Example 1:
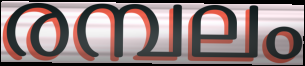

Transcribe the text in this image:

രമ്പലം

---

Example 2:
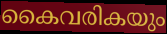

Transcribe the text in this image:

കൈവരികയും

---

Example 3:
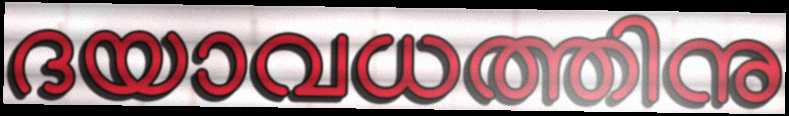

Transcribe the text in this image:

ദയാവധത്തിനു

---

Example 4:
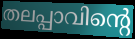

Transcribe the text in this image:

തലപ്പാവിന്റെ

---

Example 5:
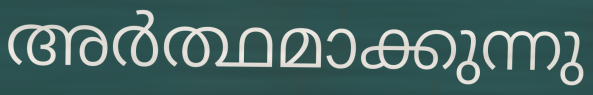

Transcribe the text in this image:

അർത്ഥമാക്കുന്നു